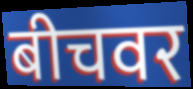
बीचवर